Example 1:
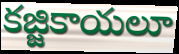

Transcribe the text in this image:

కజ్జికాయలూ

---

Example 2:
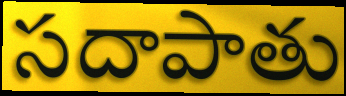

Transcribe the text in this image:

సదాపాతు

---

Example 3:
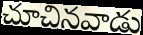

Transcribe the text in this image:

చూచినవాడు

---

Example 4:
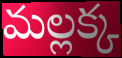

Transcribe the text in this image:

మల్లక్క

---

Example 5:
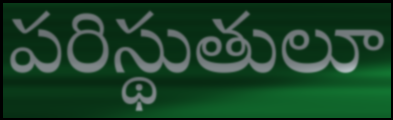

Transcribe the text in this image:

పరిస్థుతులూ